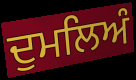
ਦੁਮਲਿਅੰ